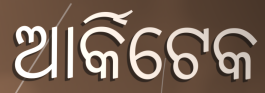
ଆର୍କିଟେକ